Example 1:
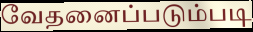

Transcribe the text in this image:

வேதனைப்படும்படி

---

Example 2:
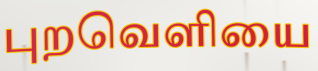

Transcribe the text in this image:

புறவெளியை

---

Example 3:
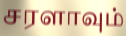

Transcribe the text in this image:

சரளாவும்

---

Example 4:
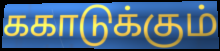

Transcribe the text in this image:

ககாடுக்கும்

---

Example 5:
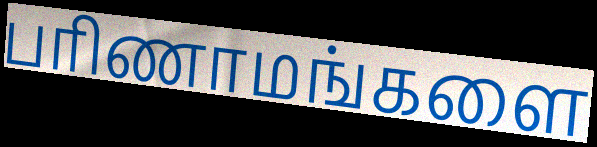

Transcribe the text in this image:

பரிணாமங்களை